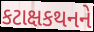
કટાક્ષકથનને